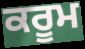
ਕਰੂਮ